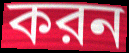
করন